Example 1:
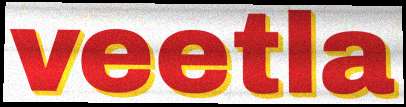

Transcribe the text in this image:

veetla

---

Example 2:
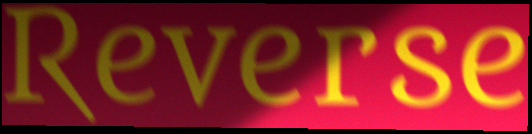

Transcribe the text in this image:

Reverse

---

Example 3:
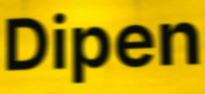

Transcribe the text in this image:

Dipen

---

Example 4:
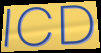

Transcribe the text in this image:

ICD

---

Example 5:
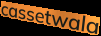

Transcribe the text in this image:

cassetwala